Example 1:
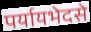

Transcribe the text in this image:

पर्यायभेदसे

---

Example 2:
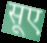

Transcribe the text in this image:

सूए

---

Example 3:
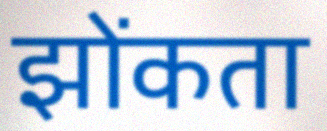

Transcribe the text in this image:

झोंकता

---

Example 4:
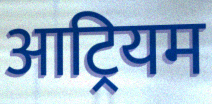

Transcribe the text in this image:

आट्रियम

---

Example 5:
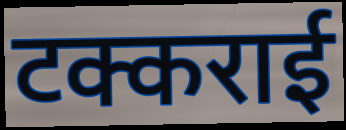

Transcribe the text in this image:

टक्कराई